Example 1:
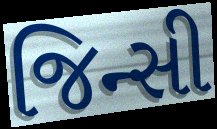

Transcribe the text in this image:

જિન્સી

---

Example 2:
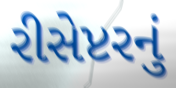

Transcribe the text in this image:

રીસેપ્ટરનું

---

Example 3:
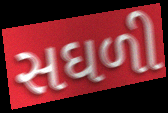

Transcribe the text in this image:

સઘળી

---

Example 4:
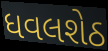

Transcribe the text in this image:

ધવલશેઠ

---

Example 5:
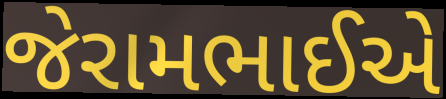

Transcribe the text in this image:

જેરામભાઈએ